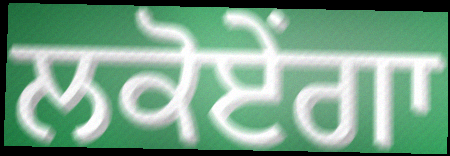
ਲਕੋਏਂਗਾ